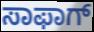
ಸಾಫಾಗ್